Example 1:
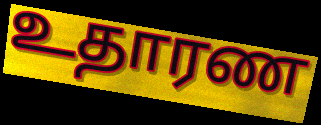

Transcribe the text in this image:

உதாரண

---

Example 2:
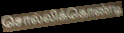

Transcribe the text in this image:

சொல்லிக்கொண்டி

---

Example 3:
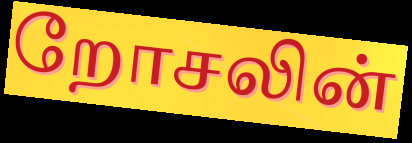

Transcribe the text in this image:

றோசலின்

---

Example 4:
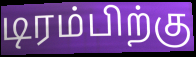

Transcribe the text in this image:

டிரம்பிற்கு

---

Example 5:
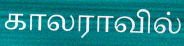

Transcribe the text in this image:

காலராவில்